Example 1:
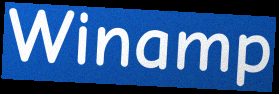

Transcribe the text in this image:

Winamp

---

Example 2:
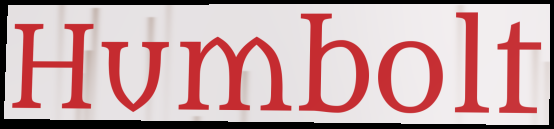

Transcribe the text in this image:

Humbolt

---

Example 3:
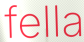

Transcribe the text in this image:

fella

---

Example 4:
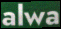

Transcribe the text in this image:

alwa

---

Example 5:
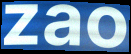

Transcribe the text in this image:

zao